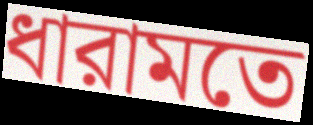
ধারামতে